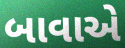
બાવાએ